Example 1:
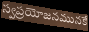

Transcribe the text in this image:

స్వప్రయోజనమునకే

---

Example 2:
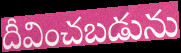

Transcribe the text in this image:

దీవించబడును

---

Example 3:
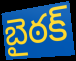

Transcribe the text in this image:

బైఠక్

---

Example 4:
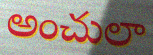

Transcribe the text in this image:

అంచులా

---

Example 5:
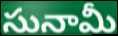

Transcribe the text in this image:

సునామీ